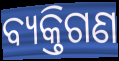
ବ୍ଯକ୍ତିଗଣ